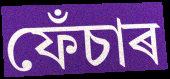
ফেঁচাৰ